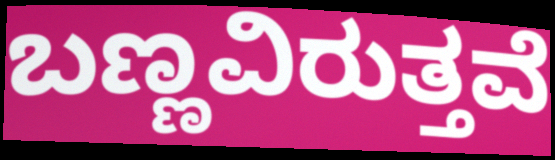
ಬಣ್ಣವಿರುತ್ತವೆ